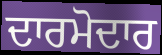
ਦਾਰਮੋਦਾਰ